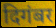
दिगंबर